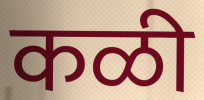
कळी